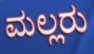
ಮಲ್ಲರು